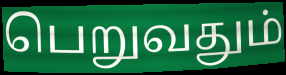
பெறுவதும்